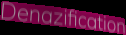
Denazification